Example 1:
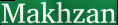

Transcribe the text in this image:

Makhzan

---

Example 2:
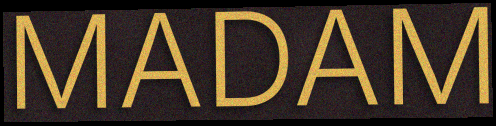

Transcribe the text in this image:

MADAM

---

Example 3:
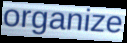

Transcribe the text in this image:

organize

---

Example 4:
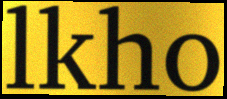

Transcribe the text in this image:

lkho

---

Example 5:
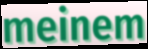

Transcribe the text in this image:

meinem